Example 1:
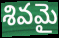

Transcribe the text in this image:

శివమై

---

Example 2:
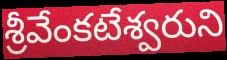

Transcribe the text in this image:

శ్రీవేంకటేశ్వరుని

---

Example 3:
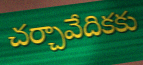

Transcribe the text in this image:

చర్చావేదికకు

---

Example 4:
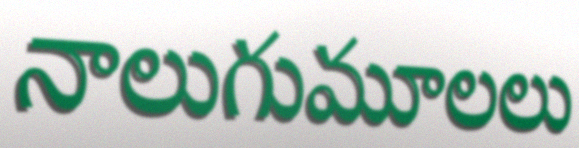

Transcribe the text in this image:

నాలుగుమూలలు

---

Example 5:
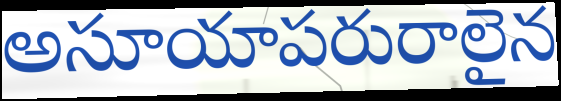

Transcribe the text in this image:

అసూయాపరురాలైన